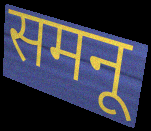
समनू